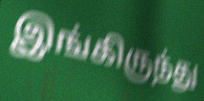
இங்கிருந்து